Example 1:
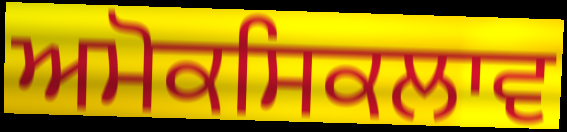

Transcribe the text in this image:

ਅਮੋਕਸਿਕਲਾਵ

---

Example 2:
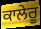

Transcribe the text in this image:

ਕਾਲੇਰੂ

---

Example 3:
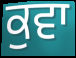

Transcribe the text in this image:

ਕੁਵਾ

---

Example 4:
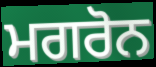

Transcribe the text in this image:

ਮਗਰੋਨ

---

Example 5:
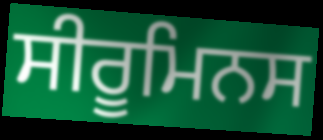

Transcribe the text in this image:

ਸੀਰੂਮਿਨਸ